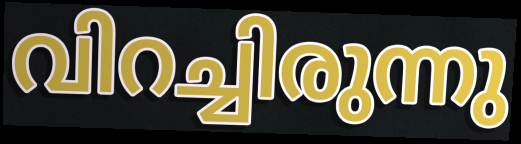
വിറച്ചിരുന്നു